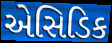
એસિડિક